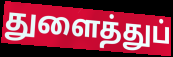
துளைத்துப்